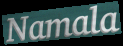
Namala